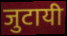
जुटायी